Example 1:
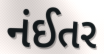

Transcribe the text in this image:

નંઈતર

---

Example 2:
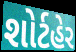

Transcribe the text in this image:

શોર્ટહેર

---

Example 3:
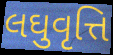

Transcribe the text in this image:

લઘુવૃત્તિ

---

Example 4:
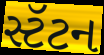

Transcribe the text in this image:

સ્ટૅટન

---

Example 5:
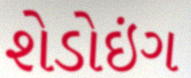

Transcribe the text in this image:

શેડોઇંગ